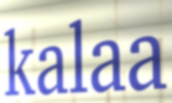
kalaa